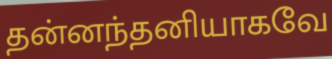
தன்னந்தனியாகவே